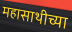
महासाथीच्या